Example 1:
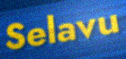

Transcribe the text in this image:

Selavu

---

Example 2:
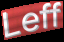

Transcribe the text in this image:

Leff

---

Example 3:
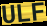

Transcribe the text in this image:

ULF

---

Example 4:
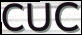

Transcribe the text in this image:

CUC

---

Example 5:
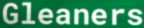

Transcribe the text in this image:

Gleaners